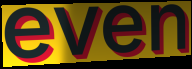
even